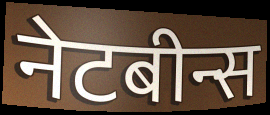
नेटबीन्स